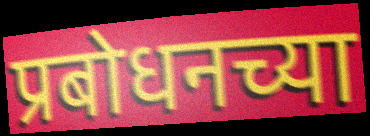
प्रबोधनच्या